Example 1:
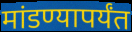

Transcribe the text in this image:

मांडण्यापर्यंत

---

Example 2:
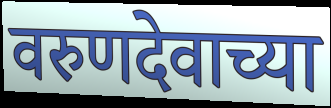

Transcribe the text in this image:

वरुणदेवाच्या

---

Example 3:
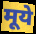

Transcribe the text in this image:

मूये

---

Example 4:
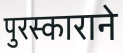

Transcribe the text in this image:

पुरस्काराने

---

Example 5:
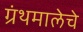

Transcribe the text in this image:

ग्रंथमालेचे